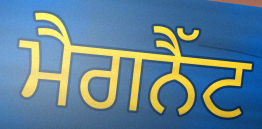
ਮੈਗਨੈੱਟ